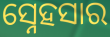
ସ୍ନେହସାର